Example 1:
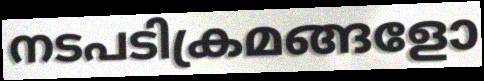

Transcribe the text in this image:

നടപടിക്രമങ്ങളോ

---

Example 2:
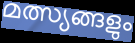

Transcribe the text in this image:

മത്സ്യങ്ങളും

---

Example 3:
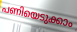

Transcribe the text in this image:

പണിയെടുക്കാം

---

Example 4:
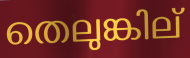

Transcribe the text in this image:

തെലുങ്കില്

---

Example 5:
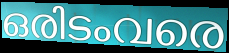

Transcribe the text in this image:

ഒരിടംവരെ